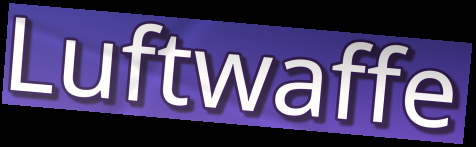
Luftwaffe